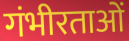
गंभीरताओं